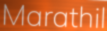
Marathil